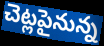
చెట్లపైనున్న